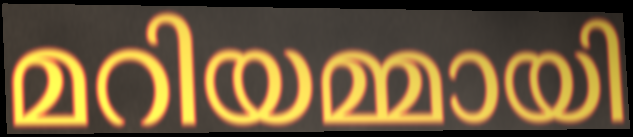
മറിയമ്മായി